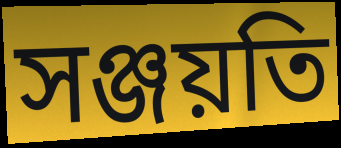
সঞ্জয়তি